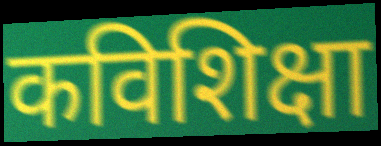
कविशिक्षा